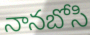
నానబోసి